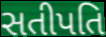
સતીપતિ